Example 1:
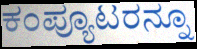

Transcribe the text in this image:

ಕಂಪ್ಯೂಟರನ್ನೂ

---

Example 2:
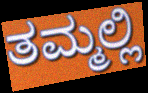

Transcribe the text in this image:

ತಮ್ಮಲ್ಲಿ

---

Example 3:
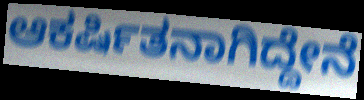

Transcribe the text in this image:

ಆಕರ್ಷಿತನಾಗಿದ್ದೇನೆ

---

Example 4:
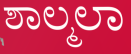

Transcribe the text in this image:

ಶಾಲ್ಮಲಾ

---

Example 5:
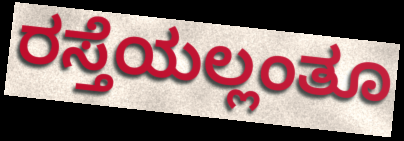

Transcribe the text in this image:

ರಸ್ತೆಯಲ್ಲಂತೂ